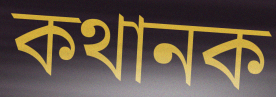
কথানক